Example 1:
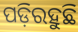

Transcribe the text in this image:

ପଡ଼ିରହୁଛି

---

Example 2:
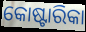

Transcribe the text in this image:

କୋଷ୍ଟାରିକା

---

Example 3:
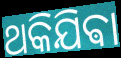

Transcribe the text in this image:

ଥକିଯିଵା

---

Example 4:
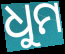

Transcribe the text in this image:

ଧୁମ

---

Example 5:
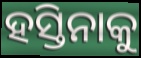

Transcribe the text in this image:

ହସ୍ତିନାକୁ